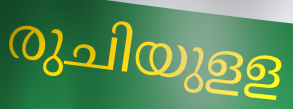
രുചിയുളള